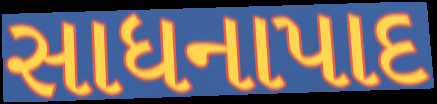
સાધનાપાદ